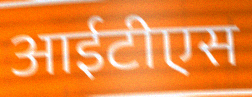
आईटीएस